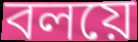
বলয়ে